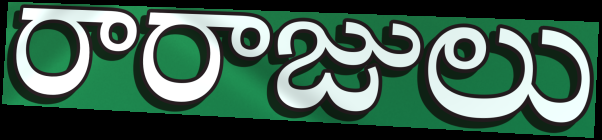
రారాజులు